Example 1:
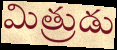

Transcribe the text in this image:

మిత్రుడు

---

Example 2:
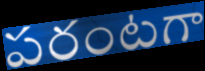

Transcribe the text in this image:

పరంటగా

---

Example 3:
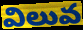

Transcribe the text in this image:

విలువ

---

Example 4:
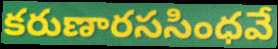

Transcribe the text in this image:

కరుణారససింధవే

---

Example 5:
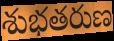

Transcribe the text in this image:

శుభతరుణ